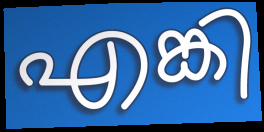
എങ്കി